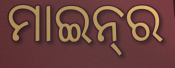
ମାଇନ୍‍ର